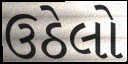
ઉઠેલો